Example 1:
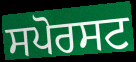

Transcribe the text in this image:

ਸਪੋਰਸਟ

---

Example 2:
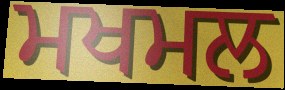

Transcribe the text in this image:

ਮਖਮਲ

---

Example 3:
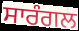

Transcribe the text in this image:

ਸਾਰੰਗਲ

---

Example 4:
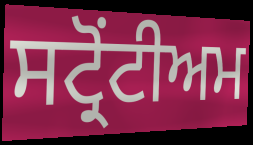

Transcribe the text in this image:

ਸਟ੍ਰੋਂਟੀਅਮ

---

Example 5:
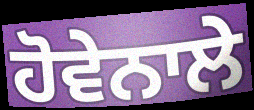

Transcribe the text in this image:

ਹੋਵੇਨਾਲੇ